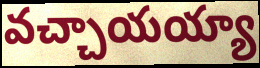
వచ్చాయయ్యా